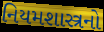
નિયમશાસ્ત્રનો